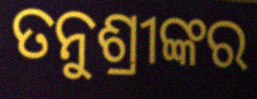
ତନୁଶ୍ରୀଙ୍କର